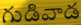
గుడివాడ